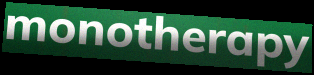
monotherapy